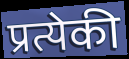
प्रत्येकी